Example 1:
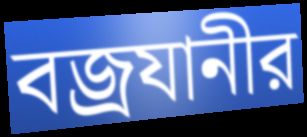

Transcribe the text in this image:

বজ্রযানীর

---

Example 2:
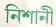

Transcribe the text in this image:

নিশানী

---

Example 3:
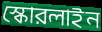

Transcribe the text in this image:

স্কোরলাইন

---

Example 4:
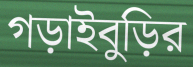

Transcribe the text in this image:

গড়াইবুড়ির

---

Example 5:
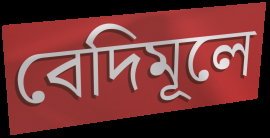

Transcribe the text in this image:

বেদিমূলে